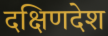
दक्षिणदेश